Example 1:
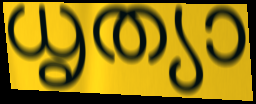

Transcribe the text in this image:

ധൃത്യാ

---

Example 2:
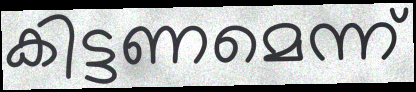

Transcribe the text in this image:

കിട്ടണമെന്ന്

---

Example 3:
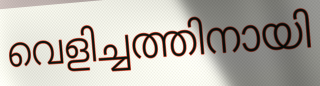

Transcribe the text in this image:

വെളിച്ചത്തിനായി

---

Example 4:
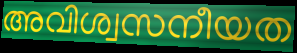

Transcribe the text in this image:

അവിശ്വസനീയത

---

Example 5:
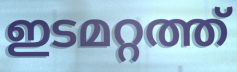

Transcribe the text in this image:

ഇടമറ്റത്ത്